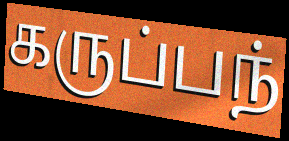
கருப்பந்